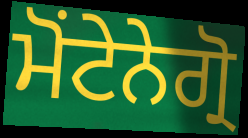
ਮੋਂਟੇਨੇਗ੍ਰੋ